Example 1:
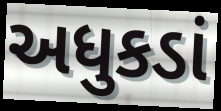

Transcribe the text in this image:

અધુકડાં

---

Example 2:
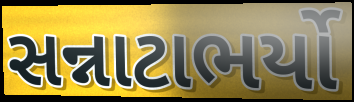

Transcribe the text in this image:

સન્નાટાભર્યો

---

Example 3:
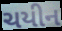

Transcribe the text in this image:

ચયીન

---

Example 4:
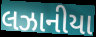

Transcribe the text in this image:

લઝાનીયા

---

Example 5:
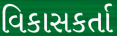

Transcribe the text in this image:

વિકાસકર્તા